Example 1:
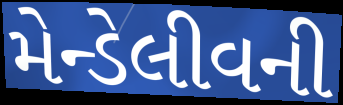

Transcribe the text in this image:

મેન્ડેલીવની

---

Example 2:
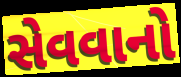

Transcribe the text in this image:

સેવવાનો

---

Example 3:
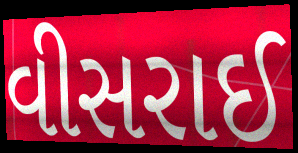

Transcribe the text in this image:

વીસરાઈ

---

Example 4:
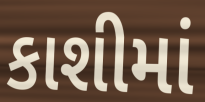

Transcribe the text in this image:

કાશીમાં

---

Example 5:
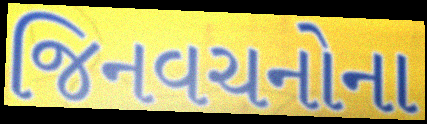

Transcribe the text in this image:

જિનવચનોના